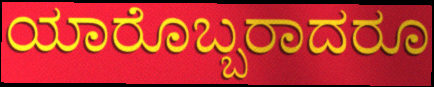
ಯಾರೊಬ್ಬರಾದರೂ